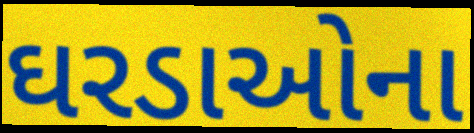
ઘરડાઓના